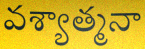
వశ్యాత్మనా